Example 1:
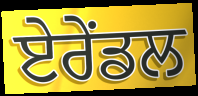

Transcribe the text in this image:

ਏਰੇਂਡਲ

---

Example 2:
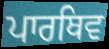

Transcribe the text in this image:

ਪਾਰਥਿਵ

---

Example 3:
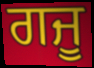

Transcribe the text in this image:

ਗਜੂ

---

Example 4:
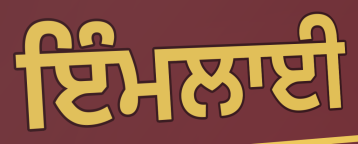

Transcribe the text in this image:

ਇੰਮਲਾਈ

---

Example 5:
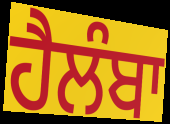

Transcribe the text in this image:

ਹੈਲੰਬਾ